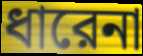
ধারেনা